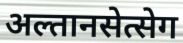
अल्तानसेत्सेग